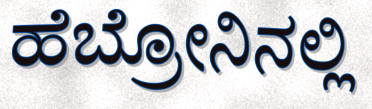
ಹೆಬ್ರೋನಿನಲ್ಲಿ